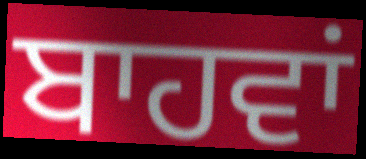
ਬਾਹਵਾਂ